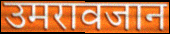
उमरावजान